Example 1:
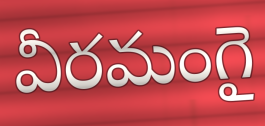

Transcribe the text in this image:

వీరమంగై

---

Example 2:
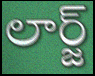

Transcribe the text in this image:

లార్జ్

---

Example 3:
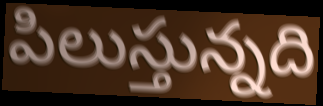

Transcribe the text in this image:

పిలుస్తున్నది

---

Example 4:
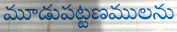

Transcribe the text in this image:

మూడుపట్టణములను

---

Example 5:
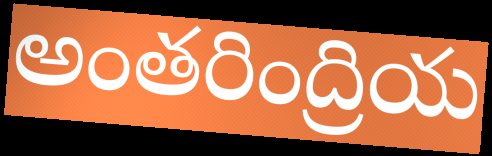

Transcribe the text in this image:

అంతరింద్రియ